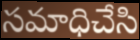
సమాధిచేసి